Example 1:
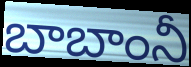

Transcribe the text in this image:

బాబాంనీ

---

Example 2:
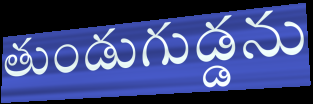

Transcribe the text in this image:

తుండుగుడ్డను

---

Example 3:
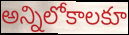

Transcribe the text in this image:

అన్నిలోకాలకూ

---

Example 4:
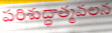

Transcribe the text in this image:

పరిశుద్ధాత్మవలన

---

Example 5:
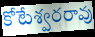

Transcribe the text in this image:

కోటేశ్వరరావు